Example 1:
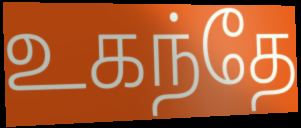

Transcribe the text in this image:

உகந்தே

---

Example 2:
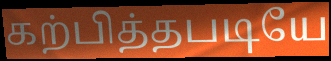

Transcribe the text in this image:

கற்பித்தபடியே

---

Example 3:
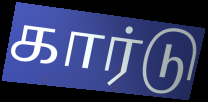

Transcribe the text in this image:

கார்டு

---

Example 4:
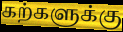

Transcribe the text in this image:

கற்களுக்கு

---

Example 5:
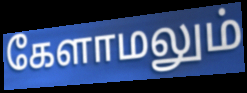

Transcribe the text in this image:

கேளாமலும்